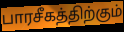
பாரசீகத்திற்கும்